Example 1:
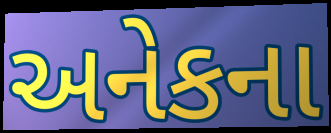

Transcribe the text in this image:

અનેકના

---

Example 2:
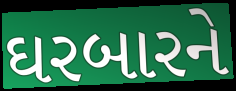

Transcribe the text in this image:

ઘરબારને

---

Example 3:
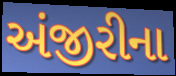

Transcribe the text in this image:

અંજીરીના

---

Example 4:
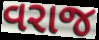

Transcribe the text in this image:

વરાજ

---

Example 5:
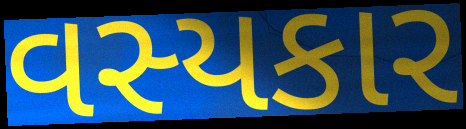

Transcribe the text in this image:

વસ્યકાર